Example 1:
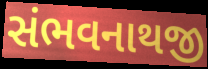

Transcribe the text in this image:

સંભવનાથજી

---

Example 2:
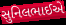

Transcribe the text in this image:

સુનિલભાઈએ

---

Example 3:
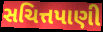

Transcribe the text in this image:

સચિત્તપાણી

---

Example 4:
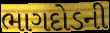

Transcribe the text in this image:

ભાગદોડની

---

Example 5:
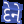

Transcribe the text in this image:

દેને